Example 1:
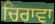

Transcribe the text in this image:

ਚਿਰਾਵਾ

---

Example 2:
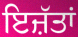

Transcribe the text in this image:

ਇਜ਼ੱਤਾਂ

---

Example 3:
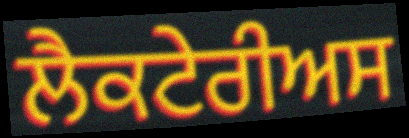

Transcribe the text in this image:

ਲੈਕਟੇਰੀਅਸ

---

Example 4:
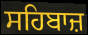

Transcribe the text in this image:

ਸਹਿਬਾਜ਼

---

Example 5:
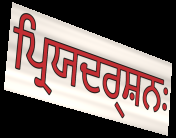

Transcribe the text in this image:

ਪ੍ਰਿਯਦਰ੍ਸ਼ਨਃ